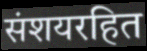
संशयरहित